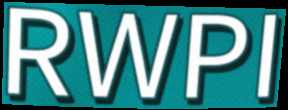
RWPI